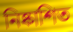
নিষ্কাশিত